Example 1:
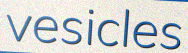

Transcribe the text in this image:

vesicles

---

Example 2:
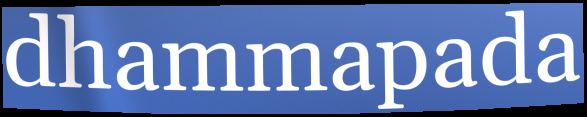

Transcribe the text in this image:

dhammapada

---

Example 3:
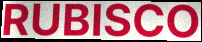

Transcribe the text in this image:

RUBISCO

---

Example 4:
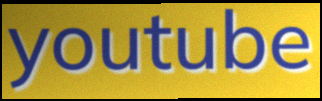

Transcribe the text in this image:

youtube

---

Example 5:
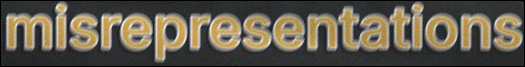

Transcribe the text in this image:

misrepresentations